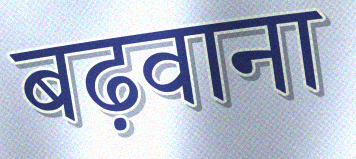
बढ़वाना